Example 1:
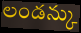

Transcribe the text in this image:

లండన్కు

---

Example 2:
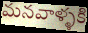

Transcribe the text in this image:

మనవాళ్ళకి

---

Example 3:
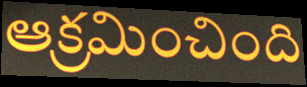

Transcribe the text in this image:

ఆక్రమించింది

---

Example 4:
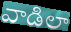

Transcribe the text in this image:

వాడిలా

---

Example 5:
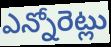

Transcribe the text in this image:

ఎన్నోరెట్లు